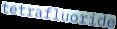
tetrafluoride